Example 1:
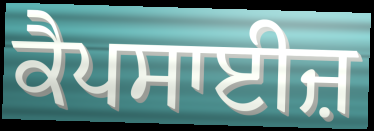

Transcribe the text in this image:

ਕੈਪਸਾਈਜ਼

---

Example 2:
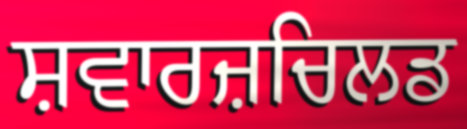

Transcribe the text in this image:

ਸ਼ਵਾਰਜ਼ਚਿਲਡ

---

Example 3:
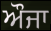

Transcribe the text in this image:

ਔਜਾ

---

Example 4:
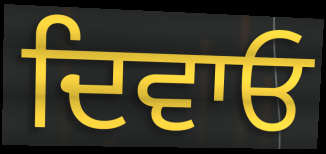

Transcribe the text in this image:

ਦਿਵਾਓ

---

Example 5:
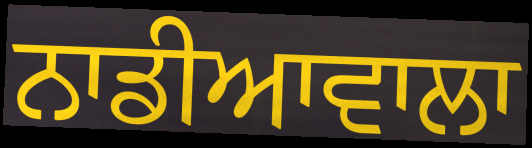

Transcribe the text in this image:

ਨਾਡੀਆਵਾਲਾ